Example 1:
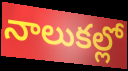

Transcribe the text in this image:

నాలుకల్లో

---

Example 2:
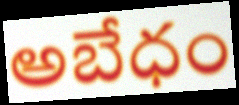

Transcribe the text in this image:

అబేధం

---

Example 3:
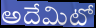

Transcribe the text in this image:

అదేమిటో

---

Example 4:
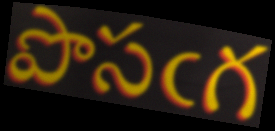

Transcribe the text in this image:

పొసఁగ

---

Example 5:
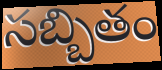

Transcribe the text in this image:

సబ్బితం